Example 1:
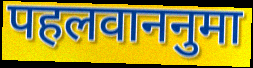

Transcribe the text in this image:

पहलवाननुमा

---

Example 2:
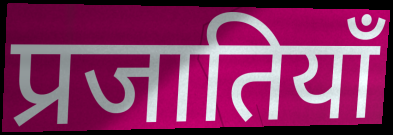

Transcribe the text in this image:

प्रजातियाँ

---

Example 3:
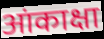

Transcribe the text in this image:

आंकाक्षा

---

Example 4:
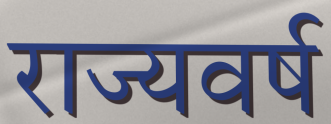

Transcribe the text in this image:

राज्यवर्ष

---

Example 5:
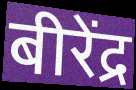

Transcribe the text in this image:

बीरेंद्र